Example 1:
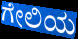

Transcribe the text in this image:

ಗೇಲಿಯ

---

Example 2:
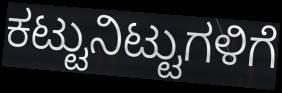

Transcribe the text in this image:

ಕಟ್ಟುನಿಟ್ಟುಗಳಿಗೆ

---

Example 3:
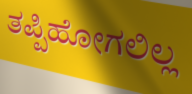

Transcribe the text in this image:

ತಪ್ಪಿಹೋಗಲಿಲ್ಲ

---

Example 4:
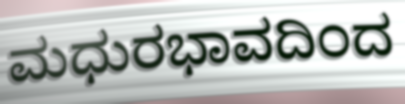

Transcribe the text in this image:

ಮಧುರಭಾವದಿಂದ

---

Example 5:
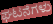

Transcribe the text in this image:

ಘಟನೆಗಳು